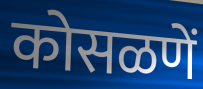
कोसळणें